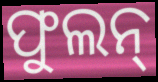
ଫୁଲନ୍